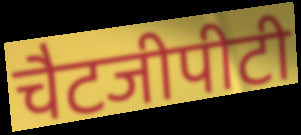
चैटजीपीटी